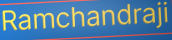
Ramchandraji